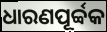
ଧାରଣପୂର୍ବ୍ବକ